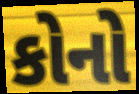
કોનો